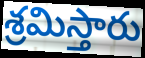
శ్రమిస్తారు